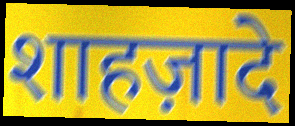
शाहज़ादे